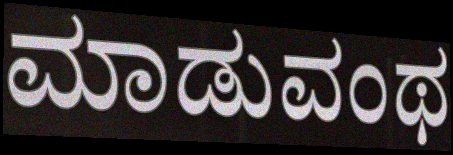
ಮಾಡುವಂಥ